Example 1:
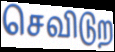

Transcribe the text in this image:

செவிடுற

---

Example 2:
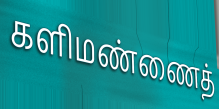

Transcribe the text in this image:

களிமண்ணைத்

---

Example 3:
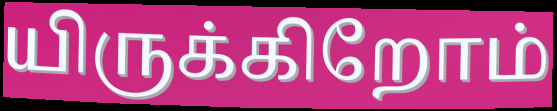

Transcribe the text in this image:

யிருக்கிறோம்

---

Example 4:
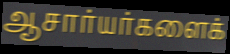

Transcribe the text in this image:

ஆசார்யர்களைக்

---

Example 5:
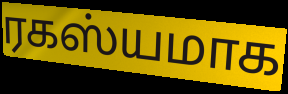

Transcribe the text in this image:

ரகஸ்யமாக